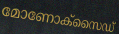
മോണോക്സൈഡ്